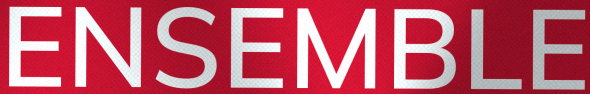
ENSEMBLE